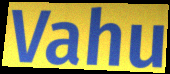
Vahu